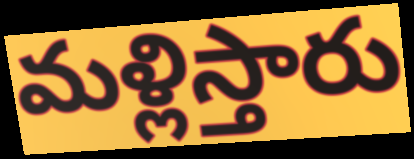
మళ్లిస్తారు